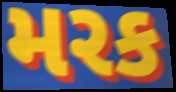
મરક